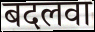
बदलवा